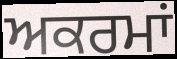
ਅਕਰਮਾਂ